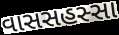
વાસસહસ્સા